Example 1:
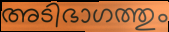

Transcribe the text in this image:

അടിഭാഗത്തും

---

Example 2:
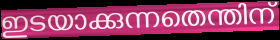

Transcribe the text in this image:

ഇടയാക്കുന്നതെന്തിന്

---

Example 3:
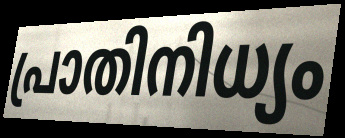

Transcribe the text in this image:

പ്രാതിനിധ്യം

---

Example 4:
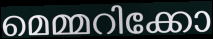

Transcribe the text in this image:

മെമ്മറിക്കോ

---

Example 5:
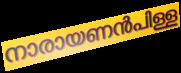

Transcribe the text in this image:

നാരായണൻപിള്ള